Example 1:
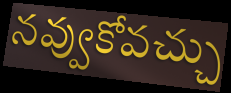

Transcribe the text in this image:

నవ్వుకోవచ్చు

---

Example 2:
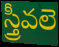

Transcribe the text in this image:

స్త్రీవలె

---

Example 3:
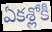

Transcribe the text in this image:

ఏకశ్లోకీ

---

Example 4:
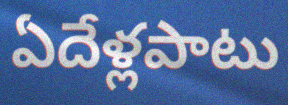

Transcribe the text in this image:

ఏదేళ్లపాటు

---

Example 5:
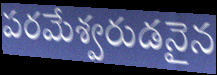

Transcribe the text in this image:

పరమేశ్వరుడనైన